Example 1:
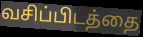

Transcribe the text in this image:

வசிப்பிடத்தை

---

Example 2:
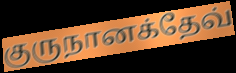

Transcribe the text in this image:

குருநானக்தேவ்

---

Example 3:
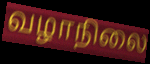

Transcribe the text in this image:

வழாநிலை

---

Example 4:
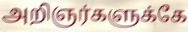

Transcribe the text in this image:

அறிஞர்களுக்கே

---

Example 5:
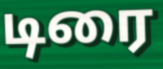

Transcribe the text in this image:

டிரை